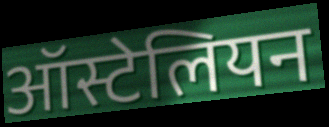
ऑस्टेलियन